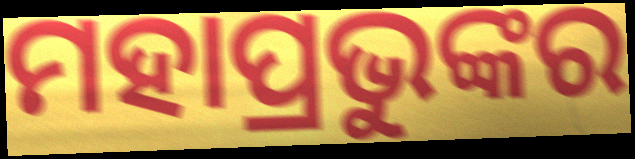
ମହାପ୍ରଭୁଙ୍କର